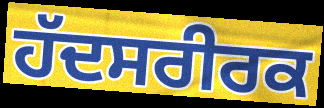
ਹੱਦਸਰੀਰਕ